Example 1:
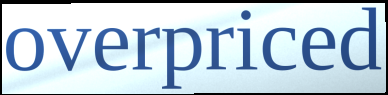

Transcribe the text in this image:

overpriced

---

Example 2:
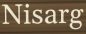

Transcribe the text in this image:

Nisarg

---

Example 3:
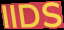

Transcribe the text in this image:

IIDS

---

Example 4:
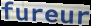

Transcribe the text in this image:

fureur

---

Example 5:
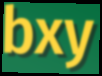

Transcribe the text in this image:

bxy